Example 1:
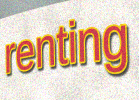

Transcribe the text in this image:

renting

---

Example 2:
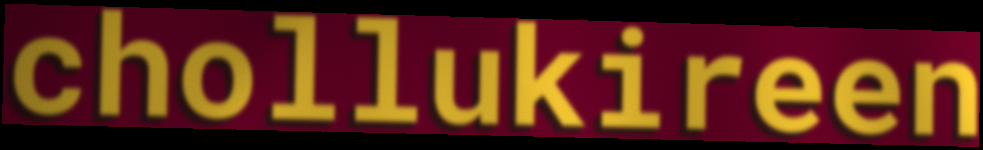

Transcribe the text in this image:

chollukireen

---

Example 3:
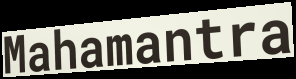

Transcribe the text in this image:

Mahamantra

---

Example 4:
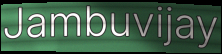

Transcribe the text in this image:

Jambuvijay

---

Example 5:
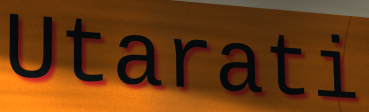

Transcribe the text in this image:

Utarati